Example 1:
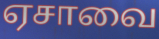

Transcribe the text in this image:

ஏசாவை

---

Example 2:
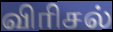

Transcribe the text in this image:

விரிசல்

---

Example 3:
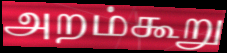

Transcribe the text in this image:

அறம்கூறு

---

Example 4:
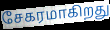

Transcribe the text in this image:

சேகரமாகிறது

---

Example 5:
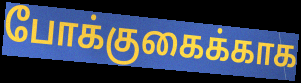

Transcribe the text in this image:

போக்குகைக்காக